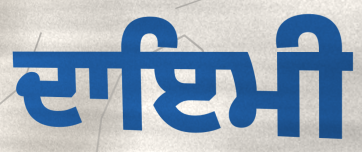
ਦਾਇਮੀ